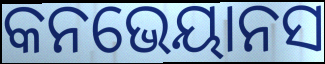
କନଭେୟାନସ